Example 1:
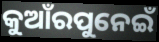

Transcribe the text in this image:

କୁଆଁରପୁନେଇଁ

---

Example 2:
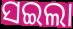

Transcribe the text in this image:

ସଇଲା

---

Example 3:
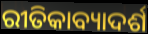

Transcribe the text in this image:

ରୀତିକାବ୍ୟାଦର୍ଶ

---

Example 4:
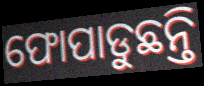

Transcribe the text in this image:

ଫୋପାଡୁଛନ୍ତି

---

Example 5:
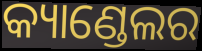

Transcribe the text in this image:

କ୍ୟାଣ୍ଡେଲର